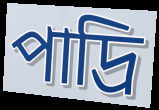
পাদ্রি